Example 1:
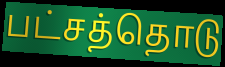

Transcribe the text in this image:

பட்சத்தொடு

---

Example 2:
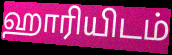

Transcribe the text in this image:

ஹாரியிடம்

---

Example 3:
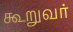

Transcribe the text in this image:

கூறுவர்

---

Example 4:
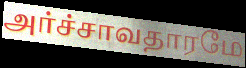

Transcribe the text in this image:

அர்ச்சாவதாரமே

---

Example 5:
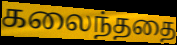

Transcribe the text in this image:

கலைந்ததை